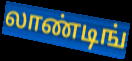
லாண்டிங்